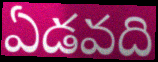
ఏడవది